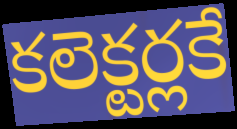
కలెక్టర్లకే